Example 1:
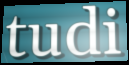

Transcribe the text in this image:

tudi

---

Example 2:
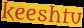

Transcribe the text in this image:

keeshtu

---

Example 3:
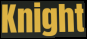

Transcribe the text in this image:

Knight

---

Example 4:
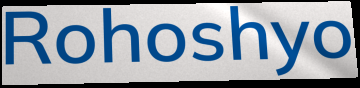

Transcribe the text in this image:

Rohoshyo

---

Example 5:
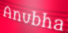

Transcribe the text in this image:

Anubha